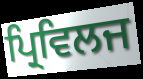
ਪ੍ਰਿਵਿਲਜ